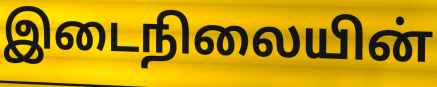
இடைநிலையின்